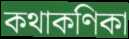
কথাকণিকা